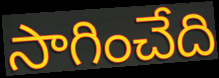
సాగించేది